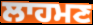
ਲਾਹਮਣ